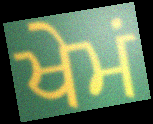
ਖੇਮਂ